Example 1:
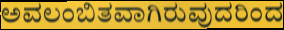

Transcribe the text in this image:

ಅವಲಂಬಿತವಾಗಿರುವುದರಿಂದ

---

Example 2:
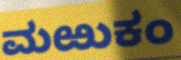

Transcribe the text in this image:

ಮಱುಕಂ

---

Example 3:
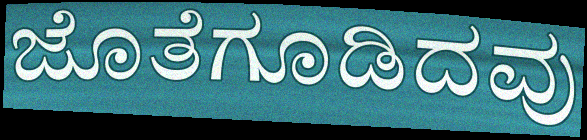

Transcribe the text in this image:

ಜೊತೆಗೂಡಿದವು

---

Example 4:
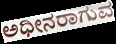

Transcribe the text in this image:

ಅಧೀನರಾಗುವ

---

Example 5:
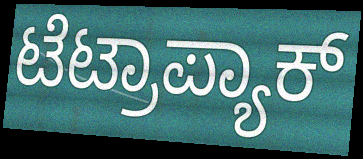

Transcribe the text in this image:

ಟೆಟ್ರಾಪ್ಯಾಕ್